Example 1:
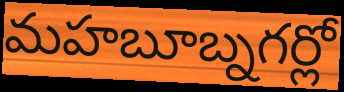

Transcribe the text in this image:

మహబూబ్నగర్లో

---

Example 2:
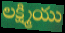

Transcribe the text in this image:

లక్ష్మియు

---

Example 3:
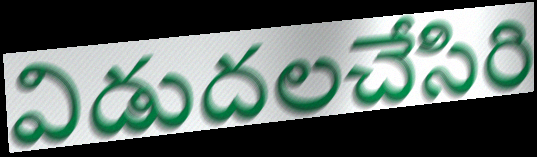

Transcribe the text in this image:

విడుదలచేసిరి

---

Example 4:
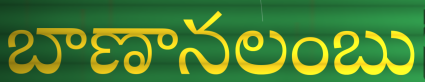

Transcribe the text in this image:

బాణానలంబు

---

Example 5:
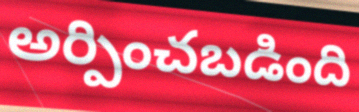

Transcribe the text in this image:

అర్పించబడింది